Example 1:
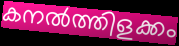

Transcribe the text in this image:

കനൽത്തിളക്കം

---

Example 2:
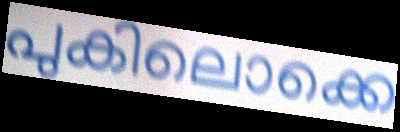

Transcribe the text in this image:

പുകിലൊക്കെ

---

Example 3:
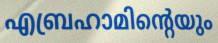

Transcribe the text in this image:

എബ്രഹാമിന്റെയും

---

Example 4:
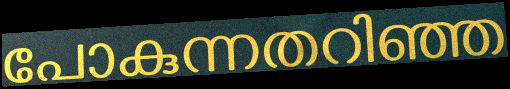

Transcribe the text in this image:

പോകുന്നതറിഞ്ഞ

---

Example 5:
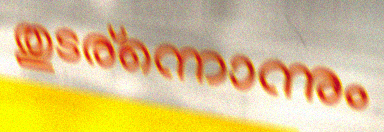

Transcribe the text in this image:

തുടര്ന്നൊന്നും